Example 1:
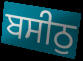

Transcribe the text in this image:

ਬਸੀਠੁ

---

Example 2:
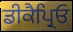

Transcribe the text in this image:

ਡੀਕੈਪ੍ਰਿਓ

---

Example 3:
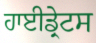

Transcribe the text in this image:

ਹਾਈਡ੍ਰੇਟਸ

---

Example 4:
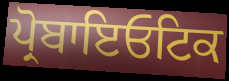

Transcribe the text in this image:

ਪ੍ਰੋਬਾਇਓਟਿਕ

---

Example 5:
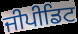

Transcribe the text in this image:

ਜੀਪੀਡਿਟ